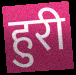
हुरी